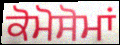
ਕੋਮੋਸੋਮਾਂ